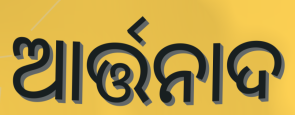
ଆର୍ତ୍ତନାଦ